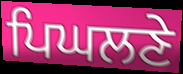
ਪਿਘਲਣੇ